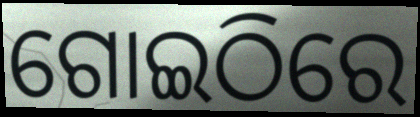
ଗୋଇଠିରେ